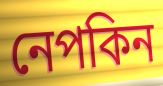
নেপকিন